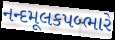
નન્દમૂલકપબ્ભારે